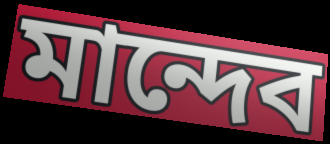
মান্দেব